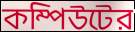
কম্পিউটের